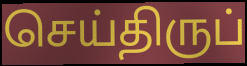
செய்திருப்